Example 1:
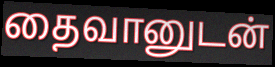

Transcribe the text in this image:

தைவானுடன்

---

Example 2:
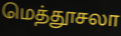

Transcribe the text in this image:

மெத்தூசலா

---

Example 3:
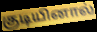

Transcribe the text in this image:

குடியினால்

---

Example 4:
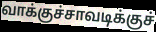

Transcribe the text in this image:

வாக்குச்சாவடிக்குச்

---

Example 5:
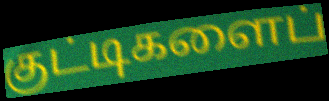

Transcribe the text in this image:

குட்டிகளைப்